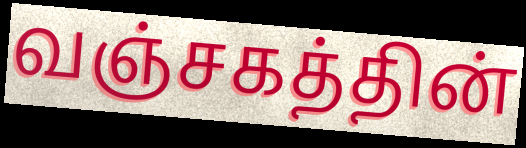
வஞ்சகத்தின்